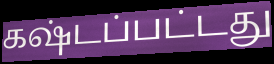
கஷ்டப்பட்டது